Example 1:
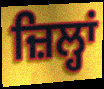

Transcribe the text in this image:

ਜ਼ਿਲ੍ਹਾਂ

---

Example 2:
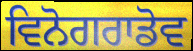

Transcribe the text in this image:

ਵਿਨੋਗਰਾਡੋਵ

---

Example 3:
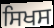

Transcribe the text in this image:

ਸਿਖਸ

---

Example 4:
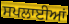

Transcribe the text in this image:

ਸਪਲਾਈਆਂ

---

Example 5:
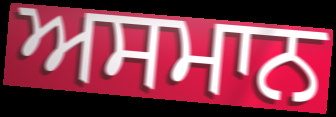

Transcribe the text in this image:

ਅਸਮਾਨ